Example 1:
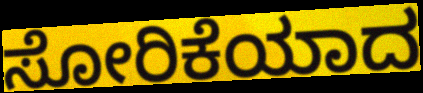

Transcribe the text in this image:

ಸೋರಿಕೆಯಾದ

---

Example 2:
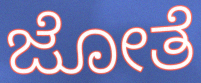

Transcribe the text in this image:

ಜೋತೆ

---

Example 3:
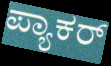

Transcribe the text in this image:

ಪ್ಯಾಕರ್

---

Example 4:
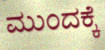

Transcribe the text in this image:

ಮುಂದಕ್ಕೆ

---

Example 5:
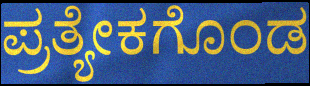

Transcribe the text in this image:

ಪ್ರತ್ಯೇಕಗೊಂಡ